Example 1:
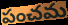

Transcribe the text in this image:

పంచమ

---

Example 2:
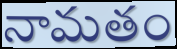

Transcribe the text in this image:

నామతం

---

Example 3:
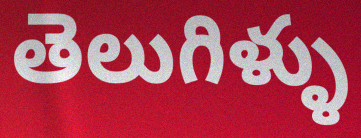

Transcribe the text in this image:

తెలుగిళ్ళు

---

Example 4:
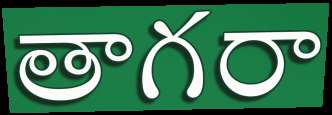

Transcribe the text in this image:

తాగరా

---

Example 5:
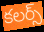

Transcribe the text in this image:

కలర్స్